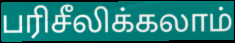
பரிசீலிக்கலாம்